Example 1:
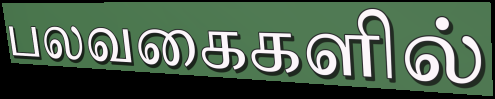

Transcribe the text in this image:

பலவகைகளில்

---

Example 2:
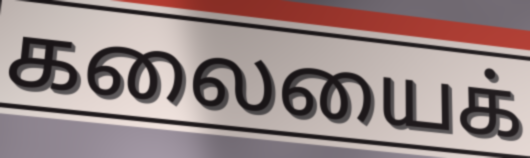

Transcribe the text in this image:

கலையைக்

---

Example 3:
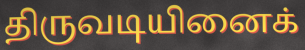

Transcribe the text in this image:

திருவடியினைக்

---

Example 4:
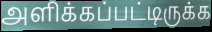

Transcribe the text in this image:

அளிக்கப்பட்டிருக்க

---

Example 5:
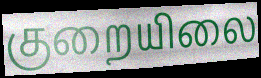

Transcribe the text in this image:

குறையிலை